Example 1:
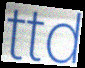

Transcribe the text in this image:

ttd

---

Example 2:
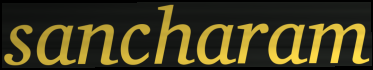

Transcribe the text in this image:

sancharam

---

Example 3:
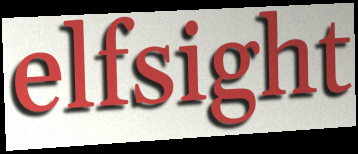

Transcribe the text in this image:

elfsight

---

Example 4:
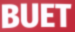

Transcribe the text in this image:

BUET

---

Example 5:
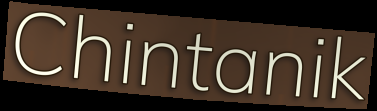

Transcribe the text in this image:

Chintanik